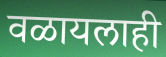
वळायलाही